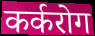
कर्करोग